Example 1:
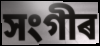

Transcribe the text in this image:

সংগীৰ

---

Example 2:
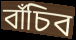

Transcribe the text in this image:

বাঁচিব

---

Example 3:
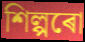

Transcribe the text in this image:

শিল্পৰো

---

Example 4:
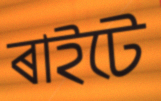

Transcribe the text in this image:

ৰাইটে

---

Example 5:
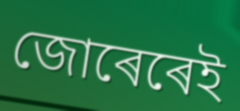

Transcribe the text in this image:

জোৰেৰেই